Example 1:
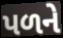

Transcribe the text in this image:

પળને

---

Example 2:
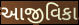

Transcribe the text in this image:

આજીવિકા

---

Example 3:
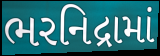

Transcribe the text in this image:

ભરનિદ્રામાં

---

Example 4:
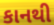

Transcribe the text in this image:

કાનથી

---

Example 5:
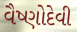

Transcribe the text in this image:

વૈષ્ણોદેવી